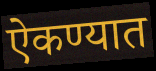
ऐकण्यात